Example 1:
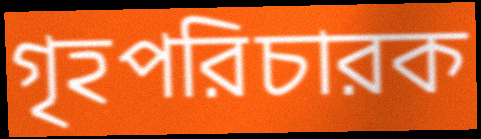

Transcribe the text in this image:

গৃহপরিচারক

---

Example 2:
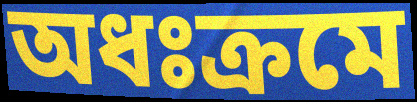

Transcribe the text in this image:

অধঃক্রমে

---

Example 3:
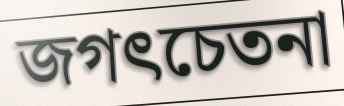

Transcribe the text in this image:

জগৎচেতনা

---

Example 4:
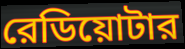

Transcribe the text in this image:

রেডিয়োটার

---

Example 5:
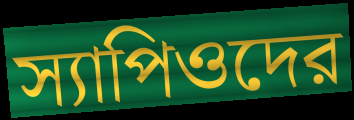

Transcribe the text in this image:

স্যাপিওদের